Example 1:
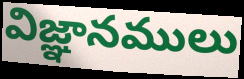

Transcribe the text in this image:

విజ్ఞానములు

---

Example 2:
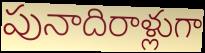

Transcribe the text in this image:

పునాదిరాళ్లుగా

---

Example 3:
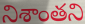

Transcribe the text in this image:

నిశాంతని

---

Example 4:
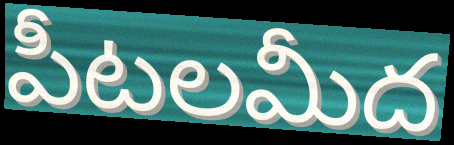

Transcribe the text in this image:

పీటలమీద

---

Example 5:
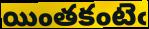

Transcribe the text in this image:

యింతకంటెఁ